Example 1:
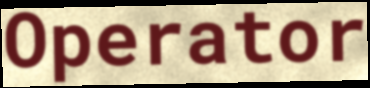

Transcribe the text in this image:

Operator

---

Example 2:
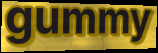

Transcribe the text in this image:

gummy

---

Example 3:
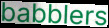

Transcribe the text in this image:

babblers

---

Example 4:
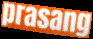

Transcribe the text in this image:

prasang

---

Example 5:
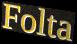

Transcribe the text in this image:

Folta